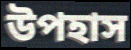
উপহাস